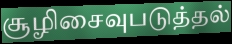
சூழிசைவுபடுத்தல்